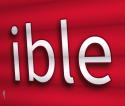
ible